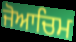
ਜੋਆਚਿਮ